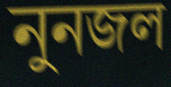
নুনজল